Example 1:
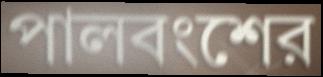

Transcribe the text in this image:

পালবংশের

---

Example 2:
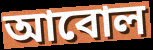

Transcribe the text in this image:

আবোল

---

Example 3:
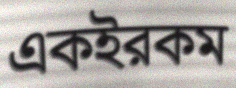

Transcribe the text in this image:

একইরকম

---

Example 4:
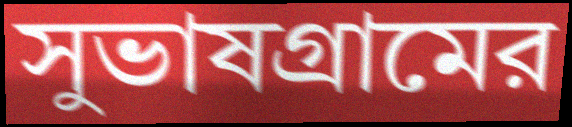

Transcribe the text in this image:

সুভাষগ্রামের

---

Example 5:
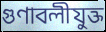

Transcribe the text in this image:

গুণাবলীযুক্ত